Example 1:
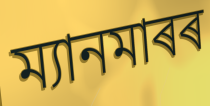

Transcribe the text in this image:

ম্যানমাৰৰ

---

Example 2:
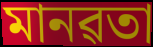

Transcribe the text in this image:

মানৱতা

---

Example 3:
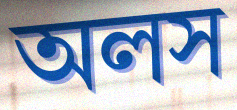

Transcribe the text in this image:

অলস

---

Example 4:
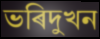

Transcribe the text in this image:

ভৰিদুখন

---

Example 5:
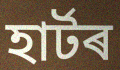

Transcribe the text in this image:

হাৰ্টৰ